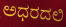
ಅಧರದಲಿ